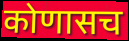
कोणासच